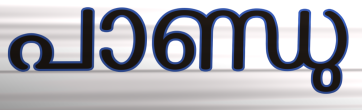
പാണ്ഡു